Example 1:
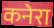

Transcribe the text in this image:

कनेरा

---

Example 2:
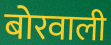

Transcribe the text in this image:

बोरवाली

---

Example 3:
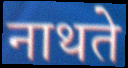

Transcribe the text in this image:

नाथते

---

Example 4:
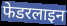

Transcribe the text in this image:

फेडरलाइन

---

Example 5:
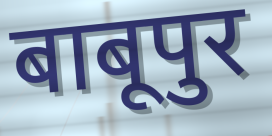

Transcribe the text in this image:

बाबूपुर